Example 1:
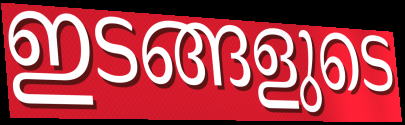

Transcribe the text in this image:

ഇടങ്ങളുടെ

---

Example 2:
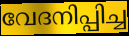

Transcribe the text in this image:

വേദനിപ്പിച്ച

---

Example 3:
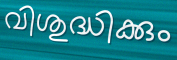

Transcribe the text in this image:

വിശുദ്ധിക്കും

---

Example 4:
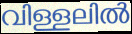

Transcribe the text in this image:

വിള്ളലിൽ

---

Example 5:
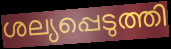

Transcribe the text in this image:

ശല്യപ്പെടുത്തി